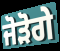
ਜੋੜੋਗੇ